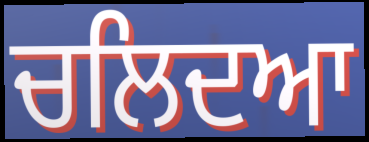
ਚਲਿਦਆ